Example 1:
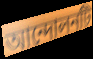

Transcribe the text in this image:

আন্দোলনটি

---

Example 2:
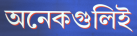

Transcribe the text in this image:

অনেকগুলিই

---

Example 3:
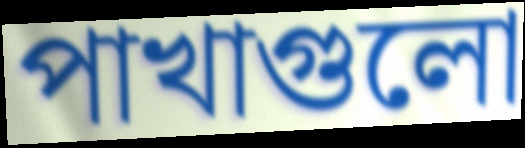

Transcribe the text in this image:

পাখাগুলো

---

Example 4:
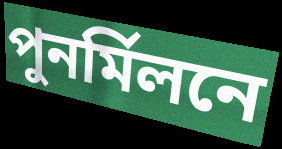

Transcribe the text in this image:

পুনর্মিলনে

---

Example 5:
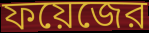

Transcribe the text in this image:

ফয়েজের